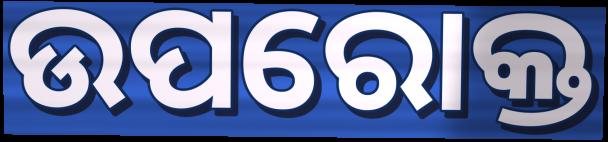
ଉପରୋକ୍ତ